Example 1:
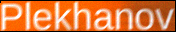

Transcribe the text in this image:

Plekhanov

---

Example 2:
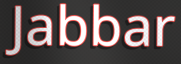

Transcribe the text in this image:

Jabbar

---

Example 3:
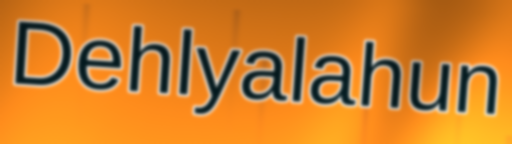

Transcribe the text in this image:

Dehlyalahun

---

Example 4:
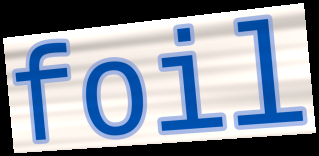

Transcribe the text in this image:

foil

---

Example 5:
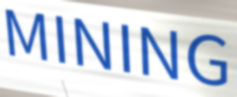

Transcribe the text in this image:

MINING